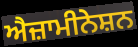
ਐਜ਼ਾਮੀਨੇਸ਼ਨ